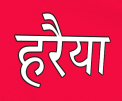
हरैया